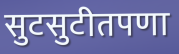
सुटसुटीतपणा